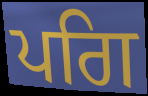
ਪਗਿ